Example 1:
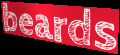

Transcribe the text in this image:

beards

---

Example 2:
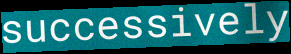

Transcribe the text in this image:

successively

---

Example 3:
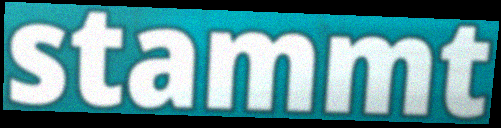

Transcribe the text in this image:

stammt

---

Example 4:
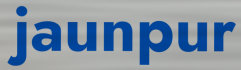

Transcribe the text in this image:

jaunpur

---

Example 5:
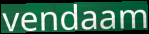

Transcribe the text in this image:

vendaam